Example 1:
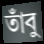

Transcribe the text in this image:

তাঁবু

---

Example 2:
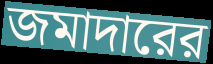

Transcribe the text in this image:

জমাদারের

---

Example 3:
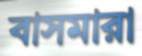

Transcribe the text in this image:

বাসমারা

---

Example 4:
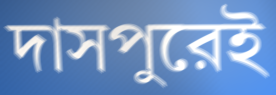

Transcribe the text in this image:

দাসপুরেই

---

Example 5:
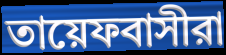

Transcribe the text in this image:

তায়েফবাসীরা